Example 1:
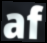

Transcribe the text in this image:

af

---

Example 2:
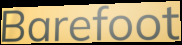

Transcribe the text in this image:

Barefoot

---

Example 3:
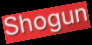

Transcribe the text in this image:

Shogun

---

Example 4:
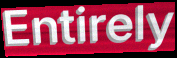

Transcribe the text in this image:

Entirely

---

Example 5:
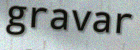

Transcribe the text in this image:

gravar